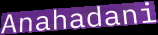
Anahadani